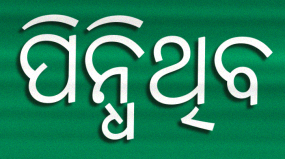
ପିନ୍ଧିଥିବ